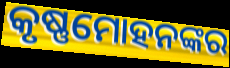
କୃଷ୍ଣମୋହନଙ୍କର